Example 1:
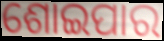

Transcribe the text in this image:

ଶୋଇପାର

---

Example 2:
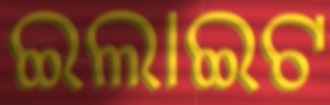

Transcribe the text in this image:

ଇଲାଇଟ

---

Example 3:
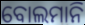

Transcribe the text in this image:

ବୋଲମାନି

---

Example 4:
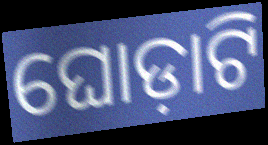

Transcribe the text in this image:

ଘୋଡ଼ାଟି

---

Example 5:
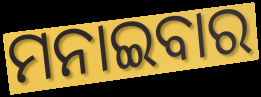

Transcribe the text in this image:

ମନାଇବାର